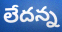
లేదన్న